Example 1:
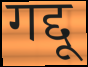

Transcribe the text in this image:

गद्दू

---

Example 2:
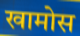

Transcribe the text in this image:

खामोस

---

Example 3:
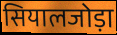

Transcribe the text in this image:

सियालजोड़ा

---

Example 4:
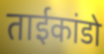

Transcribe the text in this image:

ताईकांडो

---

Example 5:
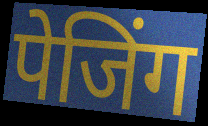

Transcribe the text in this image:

पेजिंग